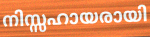
നിസ്സഹായരായി